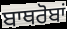
ਬਾਥਰੋਬਾਂ